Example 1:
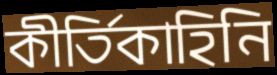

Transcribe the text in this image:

কীর্তিকাহিনি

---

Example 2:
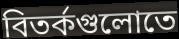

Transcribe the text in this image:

বিতর্কগুলোতে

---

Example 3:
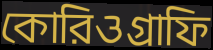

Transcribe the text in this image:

কোরিওগ্রাফি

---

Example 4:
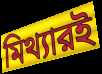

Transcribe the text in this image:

মিথ্যারই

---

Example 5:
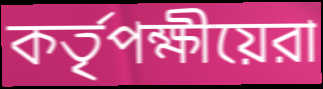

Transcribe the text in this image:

কর্তৃপক্ষীয়েরা